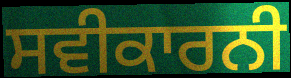
ਸਵੀਕਾਰਨੀ